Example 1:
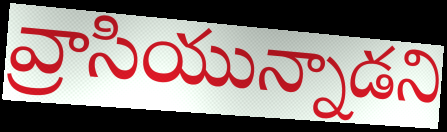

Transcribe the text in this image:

వ్రాసియున్నాడని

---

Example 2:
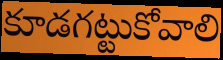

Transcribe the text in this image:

కూడగట్టుకోవాలి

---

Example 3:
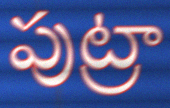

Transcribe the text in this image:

పుట్రా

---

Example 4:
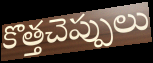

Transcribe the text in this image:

కొత్తచెప్పులు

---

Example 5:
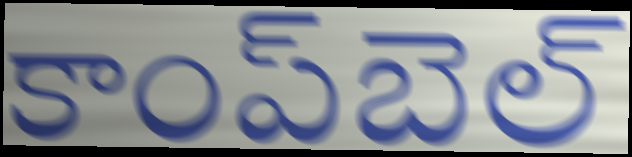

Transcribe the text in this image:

కాంప్‌బెల్